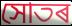
সোতৰ